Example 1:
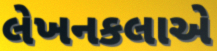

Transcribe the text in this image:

લેખનકલાએ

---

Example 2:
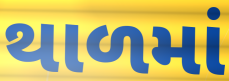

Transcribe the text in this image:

થાળમાં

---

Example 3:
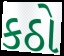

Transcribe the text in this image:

કઠો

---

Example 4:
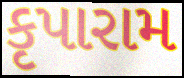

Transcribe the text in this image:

કૃપારામ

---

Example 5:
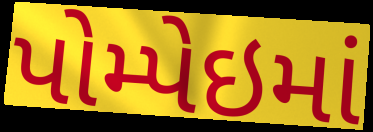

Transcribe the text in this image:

પોમ્પેઇમાં